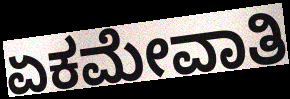
ಏಕಮೇವಾತಿ